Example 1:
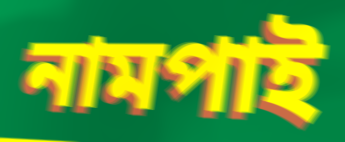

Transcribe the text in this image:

নামপাই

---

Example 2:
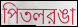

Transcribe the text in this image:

পিতলরঙা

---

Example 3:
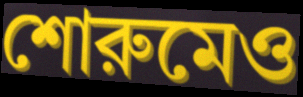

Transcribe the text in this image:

শোরুমেও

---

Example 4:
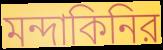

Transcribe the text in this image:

মন্দাকিনির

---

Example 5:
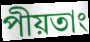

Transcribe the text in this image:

পীয়তাং